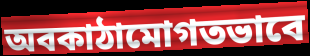
অবকাঠামোগতভাবে